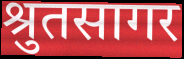
श्रुतसागर